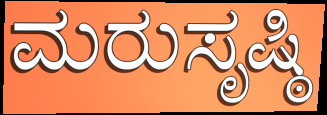
ಮರುಸೃಷ್ಠಿ